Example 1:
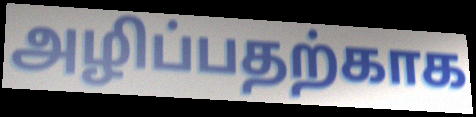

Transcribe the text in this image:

அழிப்பதற்காக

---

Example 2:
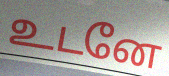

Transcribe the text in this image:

உடனே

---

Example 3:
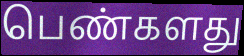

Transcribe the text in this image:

பெண்களது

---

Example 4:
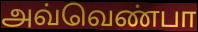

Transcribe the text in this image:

அவ்வெண்பா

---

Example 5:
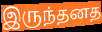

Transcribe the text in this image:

இருந்தனத